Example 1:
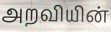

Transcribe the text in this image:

அறவியின்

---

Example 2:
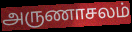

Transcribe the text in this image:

அருணாசலம்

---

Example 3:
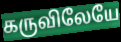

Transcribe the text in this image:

கருவிலேயே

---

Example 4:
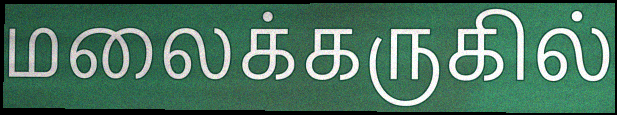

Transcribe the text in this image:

மலைக்கருகில்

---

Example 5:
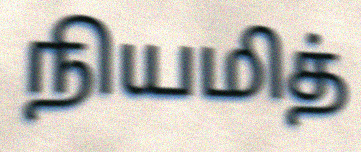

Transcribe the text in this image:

நியமித்